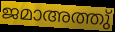
ജമാഅത്തു്